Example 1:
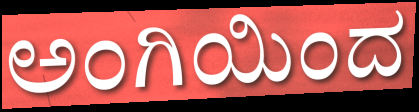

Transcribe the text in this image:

ಅಂಗಿಯಿಂದ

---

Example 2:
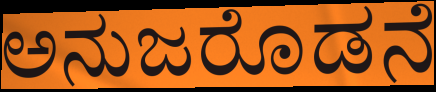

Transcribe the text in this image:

ಅನುಜರೊಡನೆ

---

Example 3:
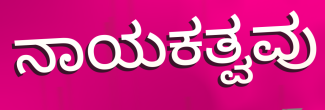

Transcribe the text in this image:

ನಾಯಕತ್ವವು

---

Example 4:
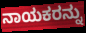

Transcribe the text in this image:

ನಾಯಕರನ್ನು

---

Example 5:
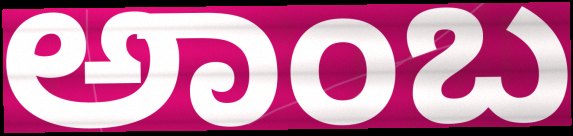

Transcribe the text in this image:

ಅಾಂಬ